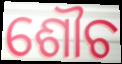
ଶୌଚ